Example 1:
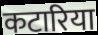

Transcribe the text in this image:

कटारिया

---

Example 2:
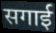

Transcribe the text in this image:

सगाई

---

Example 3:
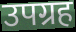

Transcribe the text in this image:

उपग्रह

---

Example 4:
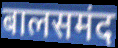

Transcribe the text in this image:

बालसमंद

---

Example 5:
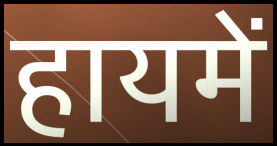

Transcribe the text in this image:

हायमें